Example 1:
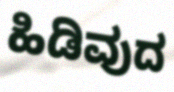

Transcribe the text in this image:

ಹಿಡಿವುದ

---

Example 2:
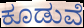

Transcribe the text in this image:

ಕೂಡುವೆ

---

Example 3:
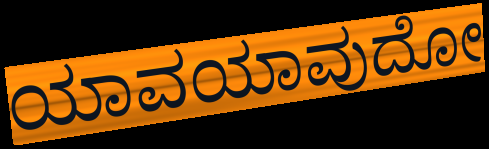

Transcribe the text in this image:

ಯಾವಯಾವುದೋ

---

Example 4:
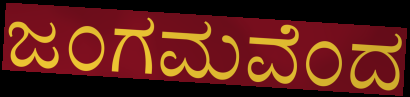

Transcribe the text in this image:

ಜಂಗಮವೆಂದ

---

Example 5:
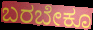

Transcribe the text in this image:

ಬರಬೇಕೂ